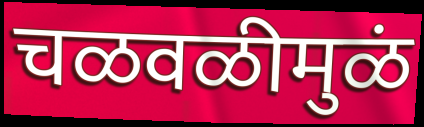
चळवळीमुळं